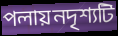
পলায়নদৃশ্যটি